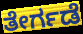
ತೇರ್ಗಡೆ